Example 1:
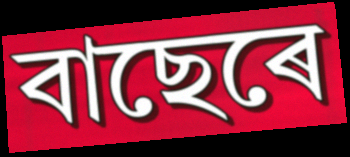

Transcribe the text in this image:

বাছেৰে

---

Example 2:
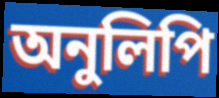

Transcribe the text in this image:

অনুলিপি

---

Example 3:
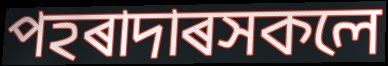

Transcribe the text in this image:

পহৰাদাৰসকলে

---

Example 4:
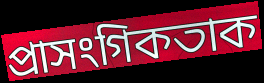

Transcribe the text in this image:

প্ৰাসংগিকতাক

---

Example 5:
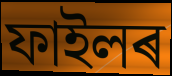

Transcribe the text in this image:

ফাইলৰ